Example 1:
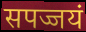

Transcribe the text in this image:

सपज्जयं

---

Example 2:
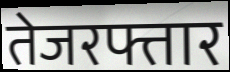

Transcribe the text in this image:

तेजरफ्तार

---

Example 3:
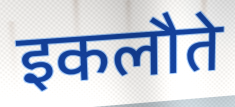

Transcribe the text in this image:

इकलौते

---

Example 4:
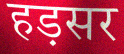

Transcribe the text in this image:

हड़सर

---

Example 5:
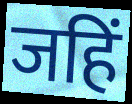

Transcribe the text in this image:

जहिं